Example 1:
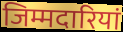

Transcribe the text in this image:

जिम्मदारियां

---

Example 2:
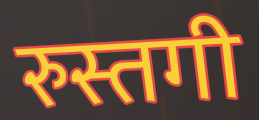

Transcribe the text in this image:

रुस्तगी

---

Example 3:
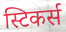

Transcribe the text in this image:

स्टिकर्स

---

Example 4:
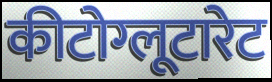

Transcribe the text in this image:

कीटोग्लूटारेट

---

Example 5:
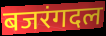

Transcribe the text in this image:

बजरंगदल